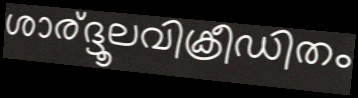
ശാര്ദ്ദൂലവിക്രീഡിതം